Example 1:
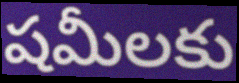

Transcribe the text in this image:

షమీలకు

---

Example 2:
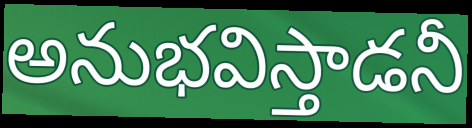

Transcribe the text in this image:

అనుభవిస్తాడనీ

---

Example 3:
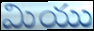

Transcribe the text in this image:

మియు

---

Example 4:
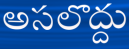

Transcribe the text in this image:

అసలొద్దు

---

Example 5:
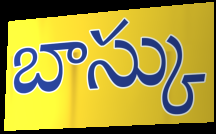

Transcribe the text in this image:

బాస్కు